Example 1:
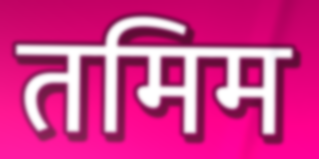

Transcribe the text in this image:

तमिम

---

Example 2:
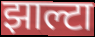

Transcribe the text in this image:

झाल्टा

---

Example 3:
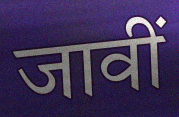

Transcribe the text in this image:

जावीं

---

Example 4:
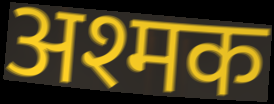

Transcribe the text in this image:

अश्मक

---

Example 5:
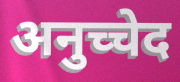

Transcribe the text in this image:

अनुच्चेद